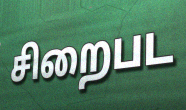
சிறைபட